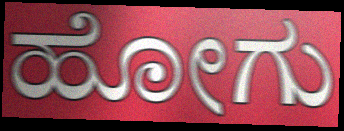
ಹೋಗು